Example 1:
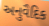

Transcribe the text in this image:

અનુવૈદિક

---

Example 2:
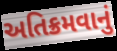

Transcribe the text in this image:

અતિક્રમવાનું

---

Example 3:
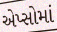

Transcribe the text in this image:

એપ્સોમાં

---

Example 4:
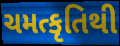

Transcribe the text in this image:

ચમત્કૃતિથી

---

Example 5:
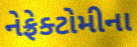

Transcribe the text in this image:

નેફ્રેક્ટોમીના